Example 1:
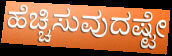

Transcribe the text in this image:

ಹೆಚ್ಚಿಸುವುದಷ್ಟೇ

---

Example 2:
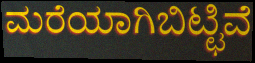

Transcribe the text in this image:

ಮರೆಯಾಗಿಬಿಟ್ಟಿವೆ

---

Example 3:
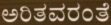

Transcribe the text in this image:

ಅರಿತವರಂತೆ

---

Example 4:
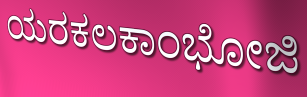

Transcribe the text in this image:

ಯರಕಲಕಾಂಭೋಜಿ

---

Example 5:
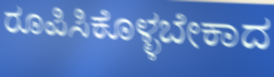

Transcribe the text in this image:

ರೂಪಿಸಿಕೊಳ್ಳಬೇಕಾದ